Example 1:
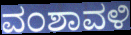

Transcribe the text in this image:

ವಂಶಾವಳಿ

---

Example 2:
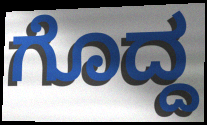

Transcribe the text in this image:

ಗೊದ್ದ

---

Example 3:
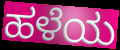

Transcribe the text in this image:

ಹಳೆಯ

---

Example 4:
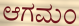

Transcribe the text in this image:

ಆಗಮಂ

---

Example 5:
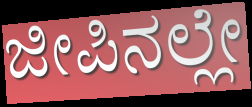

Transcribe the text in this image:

ಜೀಪಿನಲ್ಲೇ